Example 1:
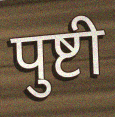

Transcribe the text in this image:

पुष्टी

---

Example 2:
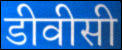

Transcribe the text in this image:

डीवीसी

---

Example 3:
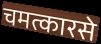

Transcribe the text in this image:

चमत्कारसे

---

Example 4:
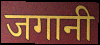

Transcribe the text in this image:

जगानी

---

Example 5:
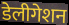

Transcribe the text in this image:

डेलीगेशन